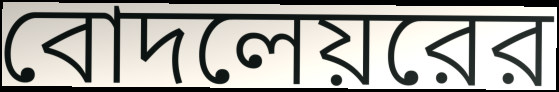
বোদলেয়রের